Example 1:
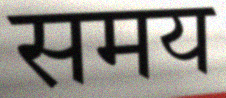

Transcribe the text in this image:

समय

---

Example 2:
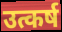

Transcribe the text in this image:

उत्कर्ष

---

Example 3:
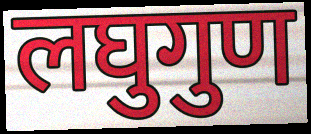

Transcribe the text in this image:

लघुगुण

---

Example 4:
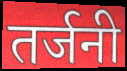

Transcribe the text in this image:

तर्जनी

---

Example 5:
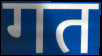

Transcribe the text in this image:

गत